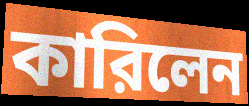
কারিলেন